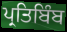
ਪ੍ਰਤਿਬਿੰਬ